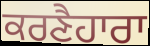
ਕਰਣੈਹਾਰਾ